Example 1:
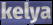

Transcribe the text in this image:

kelya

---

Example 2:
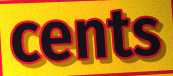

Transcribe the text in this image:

cents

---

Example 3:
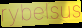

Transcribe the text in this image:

rybelsus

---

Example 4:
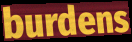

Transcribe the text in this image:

burdens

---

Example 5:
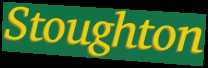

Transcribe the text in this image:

Stoughton